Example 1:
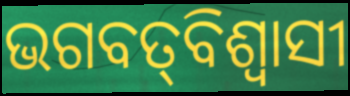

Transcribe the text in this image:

ଭଗବତ୍‌ବିଶ୍ଵାସୀ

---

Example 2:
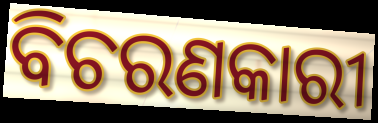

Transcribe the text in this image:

ବିଚରଣକାରୀ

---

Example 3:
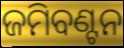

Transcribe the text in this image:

ଜମିବଣ୍ଟନ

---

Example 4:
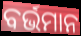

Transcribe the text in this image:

ବର୍ଭମାନ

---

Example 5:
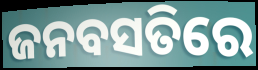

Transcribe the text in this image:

ଜନବସତିରେ